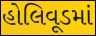
હોલિવૂડમાં